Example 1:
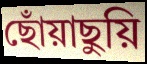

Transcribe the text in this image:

ছোঁয়াছুয়ি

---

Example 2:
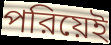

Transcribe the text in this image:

পরিয়েই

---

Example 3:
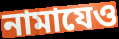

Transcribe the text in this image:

নামাযেও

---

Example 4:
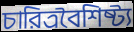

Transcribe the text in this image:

চারিত্রবৈশিষ্ট্য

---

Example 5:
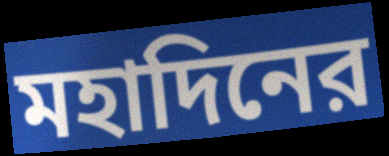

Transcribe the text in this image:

মহাদিনের